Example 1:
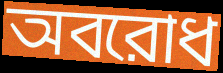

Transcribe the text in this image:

অবরোধ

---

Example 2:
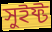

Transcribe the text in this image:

সুইফ্ট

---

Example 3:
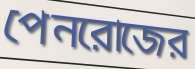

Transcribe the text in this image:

পেনরোজের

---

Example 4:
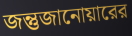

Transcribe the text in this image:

জন্তুজানোয়ারের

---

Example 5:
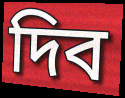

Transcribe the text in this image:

দিব